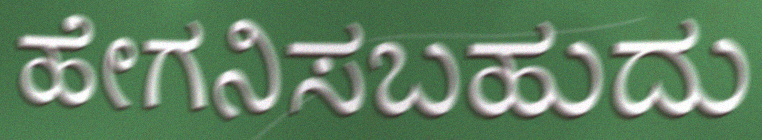
ಹೇಗನಿಸಬಹುದು